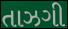
તાઝગી